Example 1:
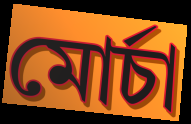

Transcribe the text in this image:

মোর্চা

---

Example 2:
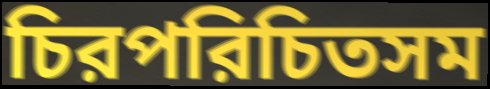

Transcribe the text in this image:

চিরপরিচিতসম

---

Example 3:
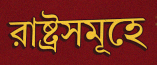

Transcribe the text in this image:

রাষ্ট্রসমূহে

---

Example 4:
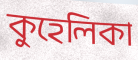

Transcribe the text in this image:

কুহেলিকা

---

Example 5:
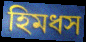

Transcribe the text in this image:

হিমধস